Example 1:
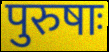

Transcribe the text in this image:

पुरुषाः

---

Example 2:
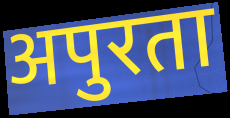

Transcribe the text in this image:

अपुरता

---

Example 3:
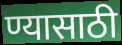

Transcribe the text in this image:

ण्यासाठी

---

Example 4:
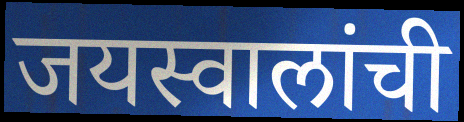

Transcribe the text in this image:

जयस्वालांची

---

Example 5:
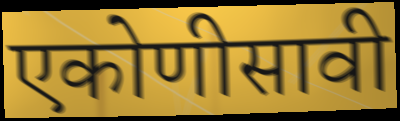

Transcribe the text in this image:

एकोणीसावी